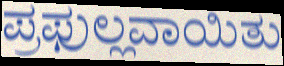
ಪ್ರಫುಲ್ಲವಾಯಿತು